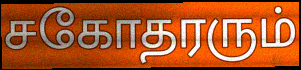
சகோதரரும்